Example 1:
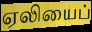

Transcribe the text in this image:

ஏலியைப்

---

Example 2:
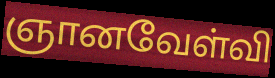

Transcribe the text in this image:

ஞானவேள்வி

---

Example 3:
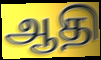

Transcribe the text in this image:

ஆதி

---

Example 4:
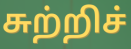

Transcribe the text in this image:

சுற்றிச்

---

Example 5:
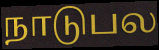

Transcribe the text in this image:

நாடுபல